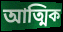
আত্মিক